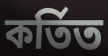
কৰ্তিত